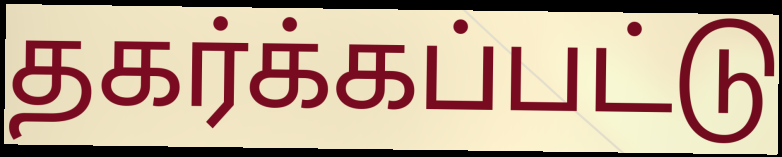
தகர்க்கப்பட்டு